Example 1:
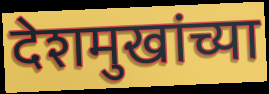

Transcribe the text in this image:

देशमुखांच्या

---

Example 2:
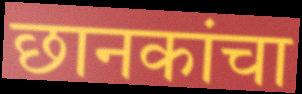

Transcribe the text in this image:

छानकांचा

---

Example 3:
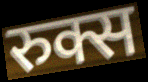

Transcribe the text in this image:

रुक्स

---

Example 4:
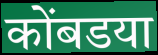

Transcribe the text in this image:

कोंबडया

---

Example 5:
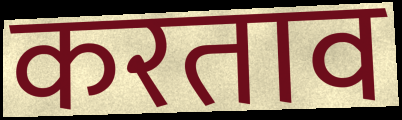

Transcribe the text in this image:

करताव